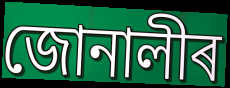
জোনালীৰ